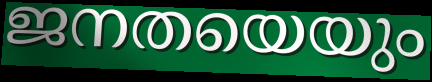
ജനതയെയും